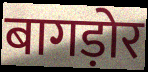
बागड़ोर